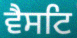
ਵੈਸਟਿ